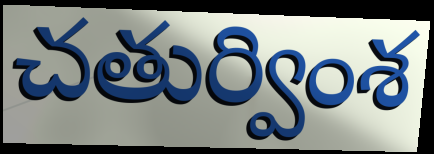
చతుర్వింశ